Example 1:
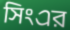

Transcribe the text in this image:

সিংএর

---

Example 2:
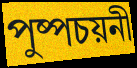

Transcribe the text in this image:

পুষ্পচয়নী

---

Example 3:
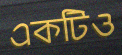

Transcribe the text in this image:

একটিও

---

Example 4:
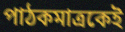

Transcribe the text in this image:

পাঠকমাত্রকেই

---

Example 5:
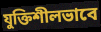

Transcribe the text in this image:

যুক্তিশীলভাবে